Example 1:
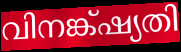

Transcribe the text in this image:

വിനങ്ക്ഷ്യതി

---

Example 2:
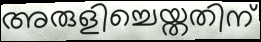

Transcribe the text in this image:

അരുളിച്ചെയ്തതിന്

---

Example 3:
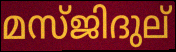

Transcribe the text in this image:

മസ്ജിദുല്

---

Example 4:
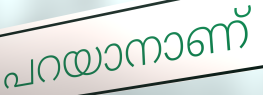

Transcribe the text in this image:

പറയാനാണ്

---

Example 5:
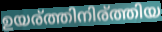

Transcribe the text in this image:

ഉയര്ത്തിനിര്ത്തിയ